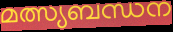
മത്സ്യബന്ധന